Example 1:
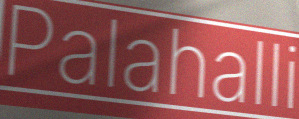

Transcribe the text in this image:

Palahalli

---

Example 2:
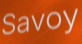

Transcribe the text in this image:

Savoy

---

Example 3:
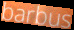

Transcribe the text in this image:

barbus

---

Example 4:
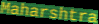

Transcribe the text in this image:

Maharshtra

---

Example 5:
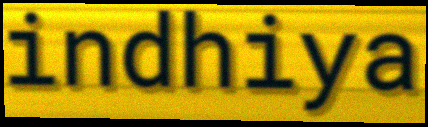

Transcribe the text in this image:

indhiya